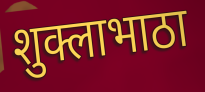
शुक्लाभाठा